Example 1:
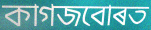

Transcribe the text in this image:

কাগজবোৰত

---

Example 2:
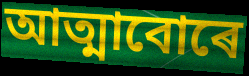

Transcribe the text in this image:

আত্মাবোৰে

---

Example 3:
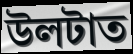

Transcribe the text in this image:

উলটাত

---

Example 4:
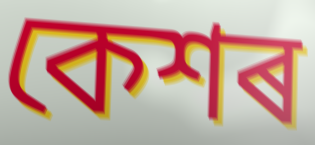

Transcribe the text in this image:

কেশৰ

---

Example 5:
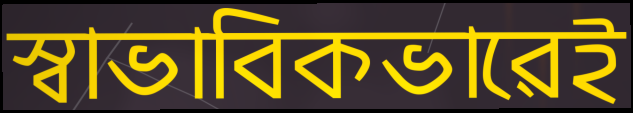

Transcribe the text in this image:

স্বাভাবিকভাৱেই